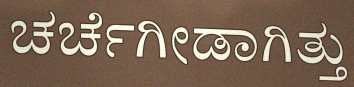
ಚರ್ಚೆಗೀಡಾಗಿತ್ತು